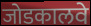
जोडकालवे